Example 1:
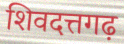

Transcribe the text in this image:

शिवदत्तगढ़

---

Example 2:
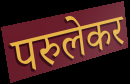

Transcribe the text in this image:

परुलेकर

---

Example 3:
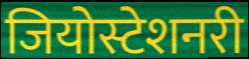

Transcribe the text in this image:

जियोस्टेशनरी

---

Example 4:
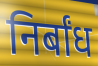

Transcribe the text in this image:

निर्बांध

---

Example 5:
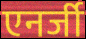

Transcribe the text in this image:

एनर्जी